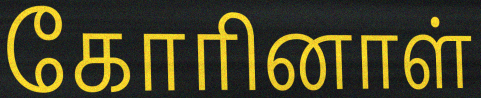
கோரினாள்